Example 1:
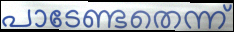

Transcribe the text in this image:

പാടേണ്ടതെന്ന്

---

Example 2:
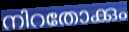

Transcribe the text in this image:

നിറതോക്കും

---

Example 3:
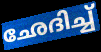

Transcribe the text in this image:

ഛേദിച്ച്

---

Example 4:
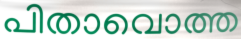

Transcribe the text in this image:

പിതാവൊത്ത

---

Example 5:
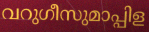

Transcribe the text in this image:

വറുഗീസുമാപ്പിള